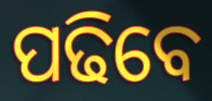
ପଢିବେ